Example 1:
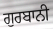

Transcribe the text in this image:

ਗੁਰਬਾਨੀ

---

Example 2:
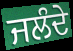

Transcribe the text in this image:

ਜਲੰਦੇ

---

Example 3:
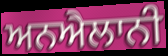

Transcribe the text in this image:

ਅਨਐਲਾਨੀ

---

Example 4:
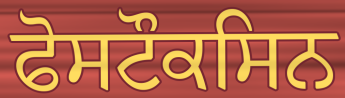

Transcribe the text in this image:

ਫੋਸਟੌਕਸਿਨ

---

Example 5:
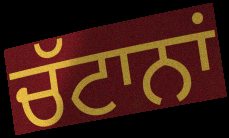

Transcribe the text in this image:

ਚੱਟਾਨਾਂ